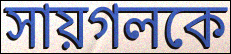
সায়গলকে